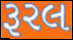
રૂરલ